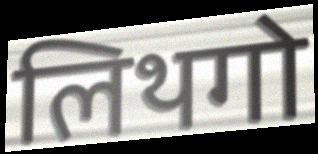
लिथगो